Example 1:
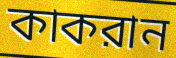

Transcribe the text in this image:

কাকরান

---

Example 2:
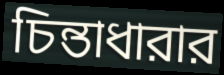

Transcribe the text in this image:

চিন্তাধারার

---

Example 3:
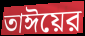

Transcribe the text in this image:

তাঈয়ের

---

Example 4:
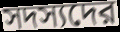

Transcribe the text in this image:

সদস্যদের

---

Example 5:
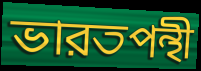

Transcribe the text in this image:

ভারতপন্থী